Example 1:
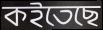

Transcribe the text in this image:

কইতেছে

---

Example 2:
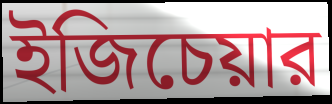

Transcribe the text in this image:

ইজিচেয়ার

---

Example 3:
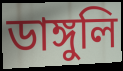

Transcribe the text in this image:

ডাঙ্গুলি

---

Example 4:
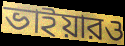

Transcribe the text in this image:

ভাইয়ারও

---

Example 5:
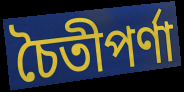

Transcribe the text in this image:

চৈতীপর্ণা